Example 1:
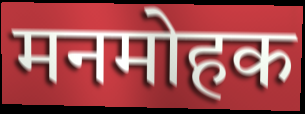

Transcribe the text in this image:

मनमोहक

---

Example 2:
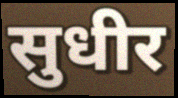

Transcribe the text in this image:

सुधीर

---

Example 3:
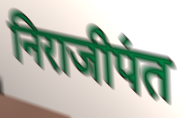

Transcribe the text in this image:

निराजीपंत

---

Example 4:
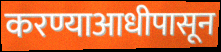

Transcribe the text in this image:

करण्याआधीपासून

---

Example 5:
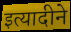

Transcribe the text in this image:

इत्यादीने